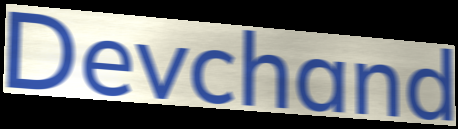
Devchand